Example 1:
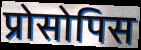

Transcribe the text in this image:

प्रोसोपिस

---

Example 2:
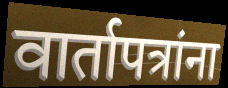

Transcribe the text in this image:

वार्तापत्रांना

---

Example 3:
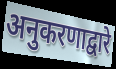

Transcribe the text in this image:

अनुकरणाद्वारे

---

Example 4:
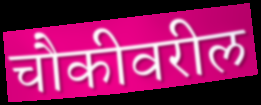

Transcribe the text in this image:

चौकीवरील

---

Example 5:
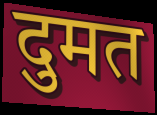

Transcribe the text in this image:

दुमत